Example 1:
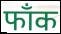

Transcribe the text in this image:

फाँक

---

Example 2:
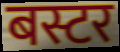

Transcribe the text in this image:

बस्टर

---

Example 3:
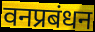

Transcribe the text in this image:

वनप्रबंधन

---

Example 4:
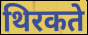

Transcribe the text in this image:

थिरकते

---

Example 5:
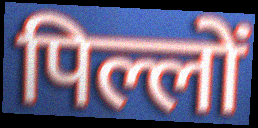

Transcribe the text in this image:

पिल्लों